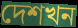
দেশখন